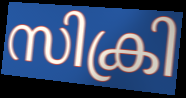
സിക്രി